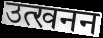
उत्‍खनन